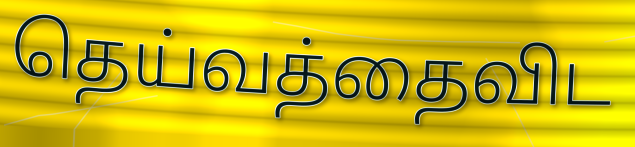
தெய்வத்தைவிட